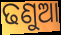
ଢଣୁଆ